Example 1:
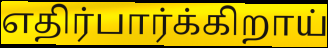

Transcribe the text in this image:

எதிர்பார்க்கிறாய்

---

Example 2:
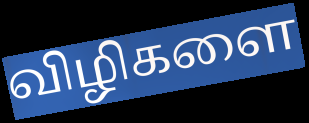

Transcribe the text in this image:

விழிகளை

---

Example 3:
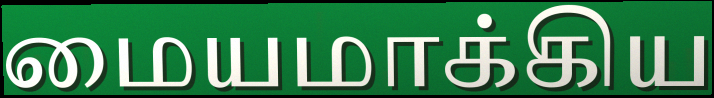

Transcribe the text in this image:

மையமாக்கிய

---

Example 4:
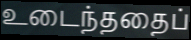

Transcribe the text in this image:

உடைந்ததைப்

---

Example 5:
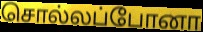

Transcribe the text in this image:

சொல்லப்போனா